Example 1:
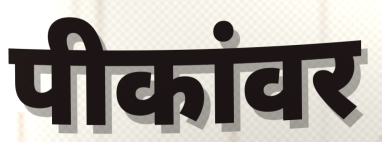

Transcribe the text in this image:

पीकांवर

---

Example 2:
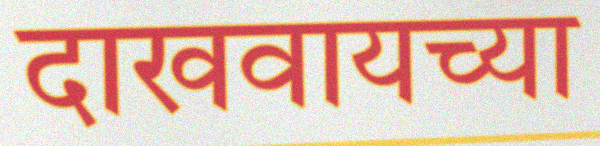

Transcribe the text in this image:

दाखवायच्या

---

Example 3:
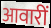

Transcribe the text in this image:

आवारीं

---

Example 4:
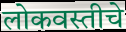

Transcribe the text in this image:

लोकवस्तीचे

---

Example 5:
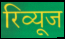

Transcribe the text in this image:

रिव्यूज